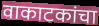
वाकाटकांचा